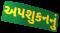
અપશુકનનું